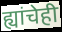
ह्यांचेही